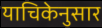
याचिकेनुसार